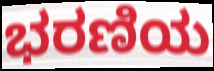
ಭರಣಿಯ